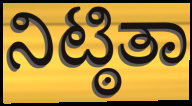
ನಿಟ್ಠಿತಾ